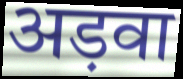
अड़वा